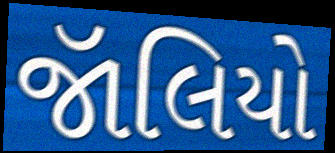
જૉલિયો